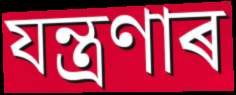
যন্ত্ৰণাৰ